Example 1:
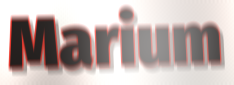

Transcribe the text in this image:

Marium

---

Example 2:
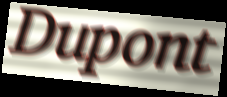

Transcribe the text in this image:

Dupont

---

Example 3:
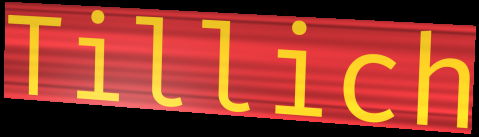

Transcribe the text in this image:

Tillich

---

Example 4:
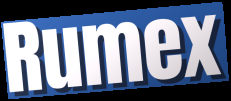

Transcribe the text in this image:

Rumex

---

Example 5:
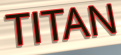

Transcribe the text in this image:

TITAN